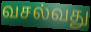
வசல்வது